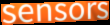
sensors